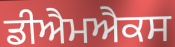
ਡੀਐਮਐਕਸ